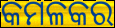
କମଳକର